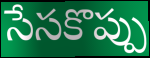
సేసకొప్పు